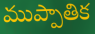
ముప్పాతిక